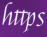
https